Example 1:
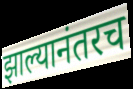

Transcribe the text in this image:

झाल्यानंतरच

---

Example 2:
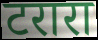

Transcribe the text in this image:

टरारा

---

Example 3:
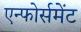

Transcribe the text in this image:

एन्फोर्समेंट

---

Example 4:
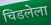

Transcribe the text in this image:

चिडलेला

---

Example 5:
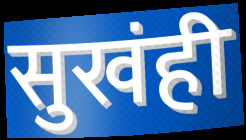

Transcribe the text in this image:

सुखंही